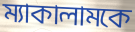
ম্যাকালামকে